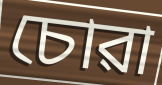
চোৱা